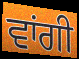
ਵਾਂਗੀ